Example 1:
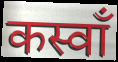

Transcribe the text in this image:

कस्वाँ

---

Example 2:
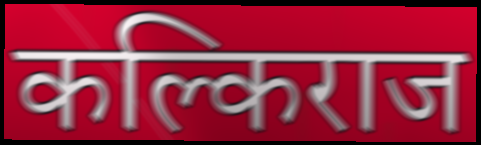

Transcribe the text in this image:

कल्किराज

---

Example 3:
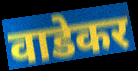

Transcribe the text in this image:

वाडेकर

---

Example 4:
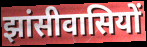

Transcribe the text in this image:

झांसीवासियों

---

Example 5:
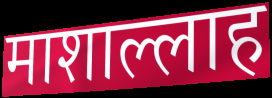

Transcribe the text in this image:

माशाल्लाह